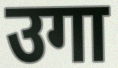
उगा